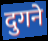
दुगने